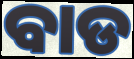
ବାଡ